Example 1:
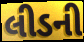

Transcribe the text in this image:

લીડની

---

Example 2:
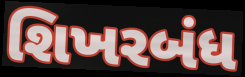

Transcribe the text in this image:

શિખરબંધ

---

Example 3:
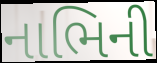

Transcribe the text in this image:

નાભિની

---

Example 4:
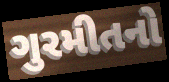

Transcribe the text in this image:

ગુરમીતનો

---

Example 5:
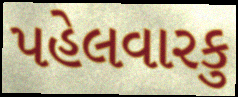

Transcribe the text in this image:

પહેલવારકુ